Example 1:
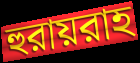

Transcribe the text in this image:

হুরায়রাহ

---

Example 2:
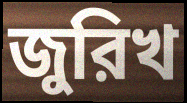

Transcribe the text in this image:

জুরিখ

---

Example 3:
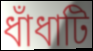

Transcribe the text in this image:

ধাঁধাটি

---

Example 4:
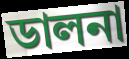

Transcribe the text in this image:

ডালনা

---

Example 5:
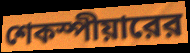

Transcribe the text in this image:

শেকস্পীয়ারের